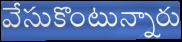
వేసుకొంటున్నారు